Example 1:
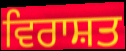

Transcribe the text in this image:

ਵਿਰਾਸ਼ਤ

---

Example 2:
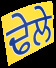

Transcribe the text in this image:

ਢੇਲੇ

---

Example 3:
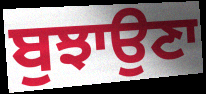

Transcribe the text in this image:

ਬੁਝਾਉਣਾ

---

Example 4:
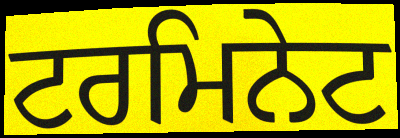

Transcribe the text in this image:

ਟਰਮਿਨੇਟ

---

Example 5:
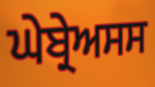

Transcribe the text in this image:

ਘੇਬ੍ਰੇਅਸਸ